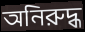
অনিরুদ্ধ